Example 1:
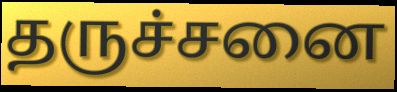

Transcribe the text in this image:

தருச்சனை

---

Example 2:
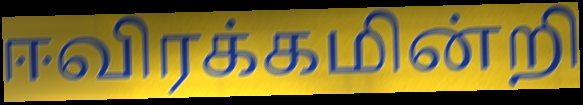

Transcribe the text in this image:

ஈவிரக்கமின்றி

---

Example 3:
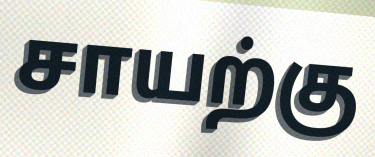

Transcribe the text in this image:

சாயற்கு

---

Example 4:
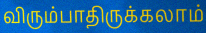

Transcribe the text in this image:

விரும்பாதிருக்கலாம்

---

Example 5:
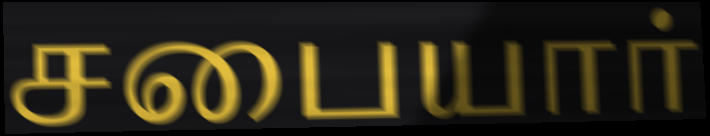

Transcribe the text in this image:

சபையார்